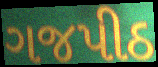
ગજપીઠ